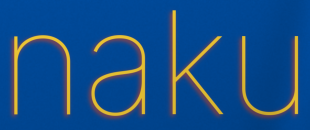
naku